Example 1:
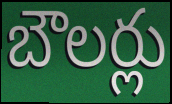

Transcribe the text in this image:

బౌలర్లు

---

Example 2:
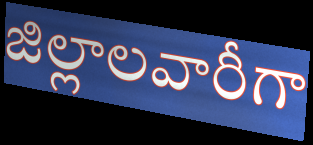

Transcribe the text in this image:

జిల్లాలవారీగా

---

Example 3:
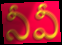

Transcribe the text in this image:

నీవీ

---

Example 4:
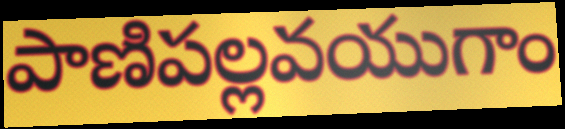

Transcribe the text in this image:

పాణిపల్లవయుగాం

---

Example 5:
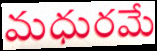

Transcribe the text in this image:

మధురమే